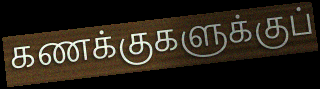
கணக்குகளுக்குப்